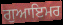
ਗੁਆਇਮਰ